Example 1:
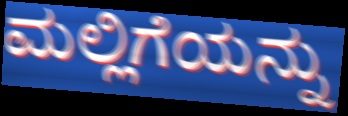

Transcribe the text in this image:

ಮಲ್ಲಿಗೆಯನ್ನು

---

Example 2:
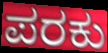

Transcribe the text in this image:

ಪರಕು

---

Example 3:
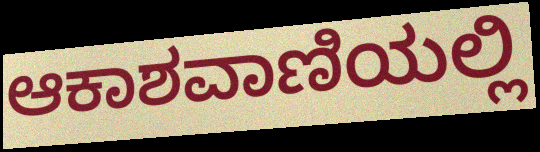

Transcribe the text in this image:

ಆಕಾಶವಾಣಿಯಲ್ಲಿ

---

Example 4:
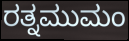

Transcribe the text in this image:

ರತ್ನಮುಮಂ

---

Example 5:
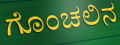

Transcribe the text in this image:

ಗೊಂಚಲಿನ